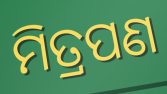
ମିତ୍ରପଣ